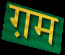
ग़म